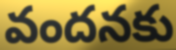
వందనకు